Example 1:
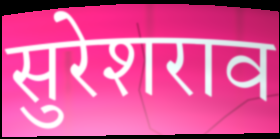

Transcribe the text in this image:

सुरेशराव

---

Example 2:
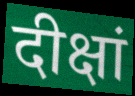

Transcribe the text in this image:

दीक्षां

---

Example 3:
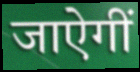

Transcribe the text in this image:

जाऐगीं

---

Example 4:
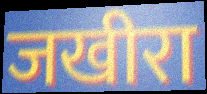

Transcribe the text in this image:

जखीरा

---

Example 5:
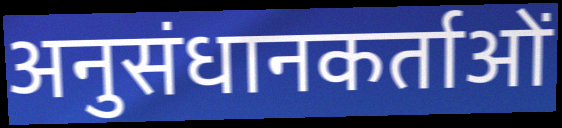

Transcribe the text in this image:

अनुसंधानकर्ताओं